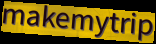
makemytrip